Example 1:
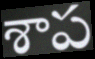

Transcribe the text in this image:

శాప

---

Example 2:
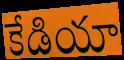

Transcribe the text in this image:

కేడియా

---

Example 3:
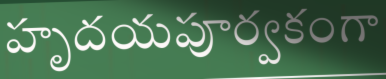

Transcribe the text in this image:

హృదయపూర్వకంగా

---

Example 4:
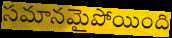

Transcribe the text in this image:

సమానమైపోయింది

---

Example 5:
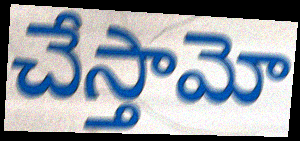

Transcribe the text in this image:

చేస్తామో